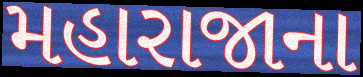
મહારાજાના